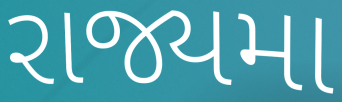
રાજ્યમા